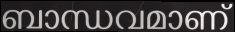
ബാന്ധവമാണ്